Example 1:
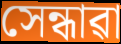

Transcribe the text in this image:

সেন্ধাৱা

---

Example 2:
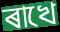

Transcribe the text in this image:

ৰাখে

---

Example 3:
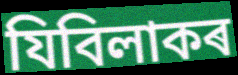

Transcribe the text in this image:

যিবিলাকৰ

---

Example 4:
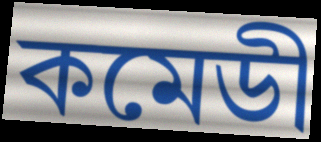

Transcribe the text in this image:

কমেডী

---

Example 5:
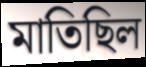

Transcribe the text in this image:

মাতিছিল